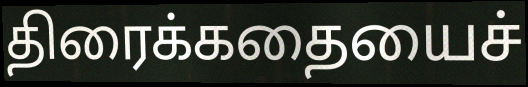
திரைக்கதையைச்